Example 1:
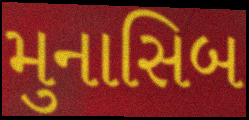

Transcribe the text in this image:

મુનાસિબ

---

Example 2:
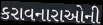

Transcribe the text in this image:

કરાવનારાઓની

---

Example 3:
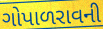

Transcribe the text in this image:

ગોપાળરાવની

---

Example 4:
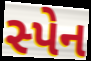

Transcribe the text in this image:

સ્પેન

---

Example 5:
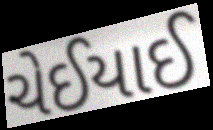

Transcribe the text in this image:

ચેઈયાઈ